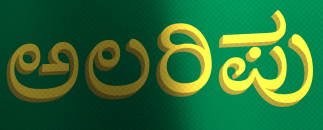
ಅಲರಿಪು